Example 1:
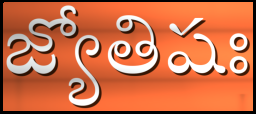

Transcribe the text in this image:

జ్యోతిషః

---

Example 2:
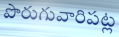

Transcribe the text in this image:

పొరుగువారిపట్ల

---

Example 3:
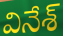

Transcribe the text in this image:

వినేశ్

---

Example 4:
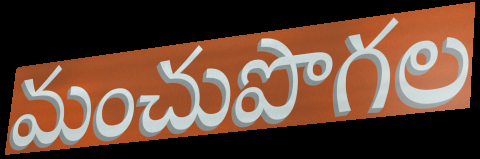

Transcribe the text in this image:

మంచుపొగల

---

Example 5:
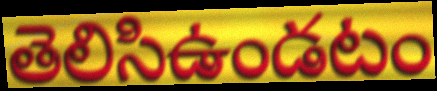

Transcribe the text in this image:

తెలిసిఉండటం